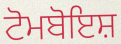
ਟੋਮਬੋਇਸ਼